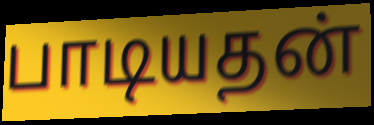
பாடியதன்